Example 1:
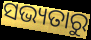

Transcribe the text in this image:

ସଭ୍ୟତାରୁ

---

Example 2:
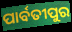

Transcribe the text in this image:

ପାର୍ବତୀପୁର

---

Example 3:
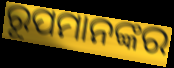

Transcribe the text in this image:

ରୂପମାନଙ୍କର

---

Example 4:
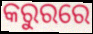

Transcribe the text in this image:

କରୁରରେ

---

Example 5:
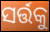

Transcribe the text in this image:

ସର୍ତ୍ତକୁ